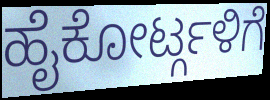
ಹೈಕೋರ್ಟ್ಗಳಿಗೆ